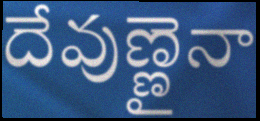
దేవుణ్ణైనా